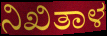
ನಿಖಿತಾಳ